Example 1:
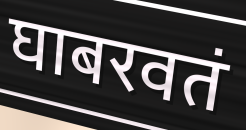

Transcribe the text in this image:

घाबरवतं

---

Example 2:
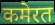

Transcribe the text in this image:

कमेरत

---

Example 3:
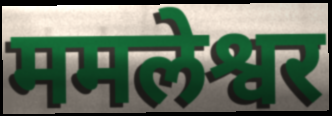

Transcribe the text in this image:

ममलेश्वर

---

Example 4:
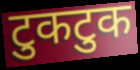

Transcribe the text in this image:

टुकटुक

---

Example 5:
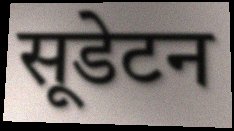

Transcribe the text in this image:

सूडेटन